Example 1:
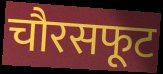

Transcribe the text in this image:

चौरसफूट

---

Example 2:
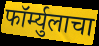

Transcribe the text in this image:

फॉर्म्युलाचा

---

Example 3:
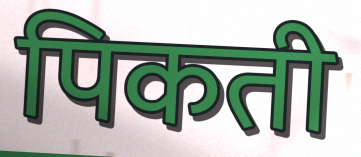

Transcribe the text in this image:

पिकती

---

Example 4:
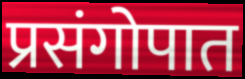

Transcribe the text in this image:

प्रसंगोपात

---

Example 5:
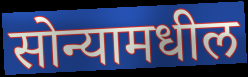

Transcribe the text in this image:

सोन्यामधील